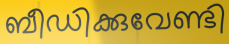
ബീഡിക്കുവേണ്ടി